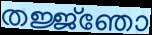
തജ്ജ്ഞോ